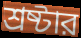
শ্রষ্টার